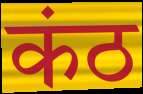
कंठ